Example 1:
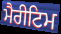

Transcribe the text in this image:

ਮੈਰੀਟਿਮ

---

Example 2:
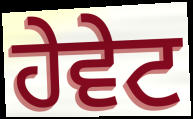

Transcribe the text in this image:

ਹੇਵੇਟ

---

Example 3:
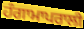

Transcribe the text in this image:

ਹੰਗਾਮਾਪਰਾਲੀ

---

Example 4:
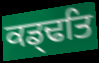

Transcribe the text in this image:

ਕਡ੍ਢਤਿ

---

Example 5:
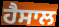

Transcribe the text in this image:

ਹੈਸਾਲ